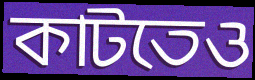
কাটতেও